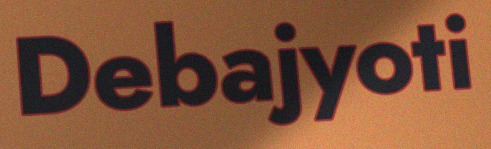
Debajyoti